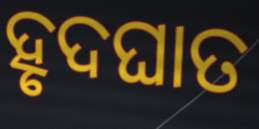
ହୃଦଘାତ